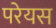
परेयस